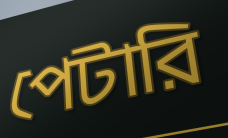
পেটারি